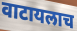
वाटायलाच